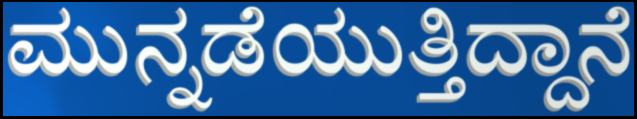
ಮುನ್ನಡೆಯುತ್ತಿದ್ದಾನೆ